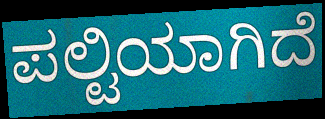
ಪಲ್ಟಿಯಾಗಿದೆ